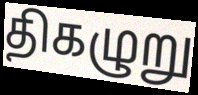
திகழுறு